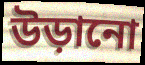
উড়ানো